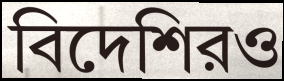
বিদেশিরও